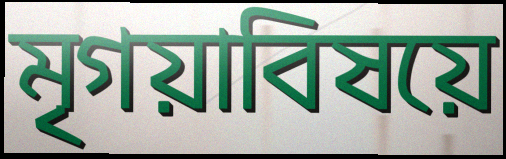
মৃগয়াবিষয়ে